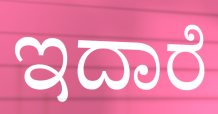
ಇದಾರೆ